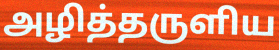
அழித்தருளிய